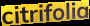
citrifolia